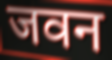
जवन